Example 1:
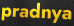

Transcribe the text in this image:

pradnya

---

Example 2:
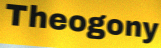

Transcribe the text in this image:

Theogony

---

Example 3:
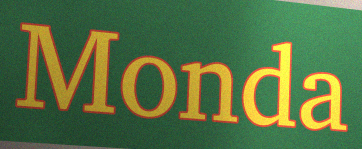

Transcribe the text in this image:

Monda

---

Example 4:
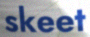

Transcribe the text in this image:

skeet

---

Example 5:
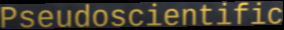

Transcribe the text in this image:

Pseudoscientific